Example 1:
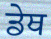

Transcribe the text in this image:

ਡੇਥ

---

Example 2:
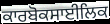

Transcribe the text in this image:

ਕਾਰਬੋਕਸਾਈਲਿਕ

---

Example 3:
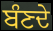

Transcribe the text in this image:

ਬੰਣਦੇ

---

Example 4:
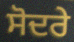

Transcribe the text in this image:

ਸੋਦਰੇ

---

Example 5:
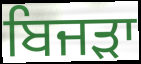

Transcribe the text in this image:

ਬਿਜੜਾ